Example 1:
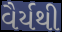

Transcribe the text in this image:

વૈર્યથી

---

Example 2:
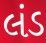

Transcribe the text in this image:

લંડ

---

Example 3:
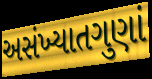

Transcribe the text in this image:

અસંખ્યાતગુણાં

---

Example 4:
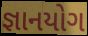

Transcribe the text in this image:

જ્ઞાનયોગ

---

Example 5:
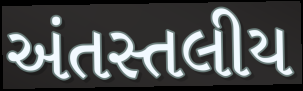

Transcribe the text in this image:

અંતસ્તલીય